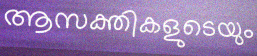
ആസക്തികളുടെയും